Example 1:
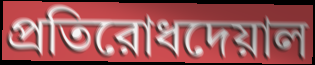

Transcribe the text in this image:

প্রতিরোধদেয়াল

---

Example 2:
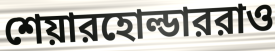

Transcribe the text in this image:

শেয়ারহোল্ডাররাও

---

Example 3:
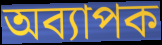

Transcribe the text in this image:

অব্যাপক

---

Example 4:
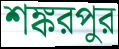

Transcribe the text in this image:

শঙ্করপুর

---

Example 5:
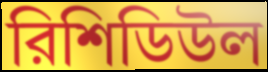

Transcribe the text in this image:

রিশিডিউল